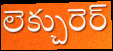
లెక్చురెర్